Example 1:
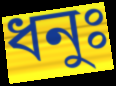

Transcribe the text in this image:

ধনুঃ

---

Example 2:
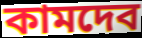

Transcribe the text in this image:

কামদেব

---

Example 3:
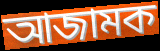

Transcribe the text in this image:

আজামক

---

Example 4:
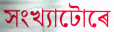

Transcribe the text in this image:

সংখ্যাটোৰে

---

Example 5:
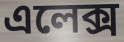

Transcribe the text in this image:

এলেক্স